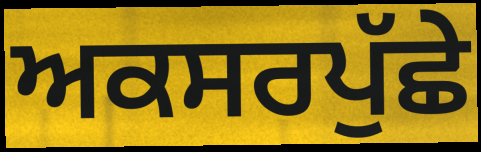
ਅਕਸਰਪੁੱਛੇ